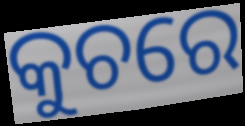
କୁଚରେ